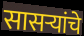
सासर्‍यांचे